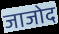
जाजोद